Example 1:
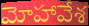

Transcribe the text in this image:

మోహావేశ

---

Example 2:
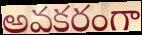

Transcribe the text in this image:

అవకరంగా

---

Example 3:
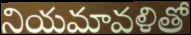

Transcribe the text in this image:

నియమావళితో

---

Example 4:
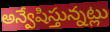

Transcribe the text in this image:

అన్వేషిస్తున్నట్లు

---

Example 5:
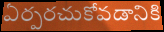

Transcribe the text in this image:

ఏర్పరచుకోవడానికి